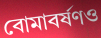
বোমাবর্ষণও